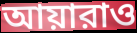
আয়ারাও